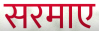
सरमाए